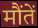
मौंतें